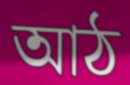
আঠ